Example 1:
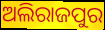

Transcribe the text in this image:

ଅଲିରାଜପୁର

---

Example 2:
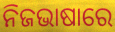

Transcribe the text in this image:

ନିଜଭାଷାରେ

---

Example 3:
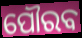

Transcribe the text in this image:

ପୌରବ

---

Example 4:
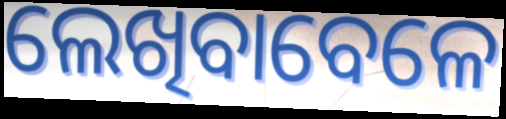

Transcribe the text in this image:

ଲେଖିବାବେଳେ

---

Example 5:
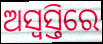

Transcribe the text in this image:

ଅସ୍ୱସ୍ତିରେ